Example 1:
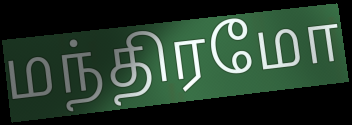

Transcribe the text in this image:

மந்திரமோ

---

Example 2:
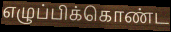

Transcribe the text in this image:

எழுப்பிக்கொண்ட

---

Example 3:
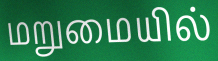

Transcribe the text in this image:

மறுமையில்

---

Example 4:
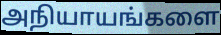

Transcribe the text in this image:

அநியாயங்களை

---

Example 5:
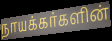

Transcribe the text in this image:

நாயக்கர்களின்